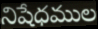
నిషేధముల